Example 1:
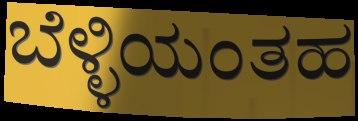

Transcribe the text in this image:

ಬೆಳ್ಳಿಯಂತಹ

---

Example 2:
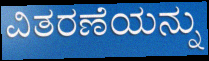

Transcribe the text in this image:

ವಿತರಣೆಯನ್ನು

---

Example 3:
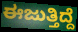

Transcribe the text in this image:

ಈಜುತ್ತಿದ್ದೆ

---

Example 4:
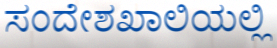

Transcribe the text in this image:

ಸಂದೇಶಖಾಲಿಯಲ್ಲಿ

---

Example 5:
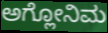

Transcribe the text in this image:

ಅಗ್ಲೋನಿಮ